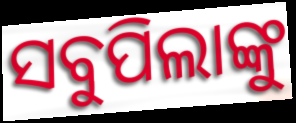
ସବୁପିଲାଙ୍କୁ